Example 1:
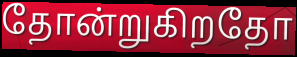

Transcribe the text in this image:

தோன்றுகிறதோ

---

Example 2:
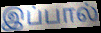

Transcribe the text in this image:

இப்பால்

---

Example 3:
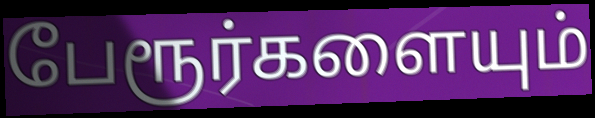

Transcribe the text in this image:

பேரூர்களையும்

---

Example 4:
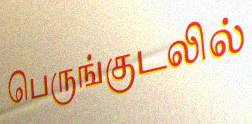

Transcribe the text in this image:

பெருங்குடலில்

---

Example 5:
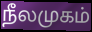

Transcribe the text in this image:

நீலமுகம்